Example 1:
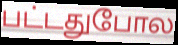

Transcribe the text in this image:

பட்டதுபோல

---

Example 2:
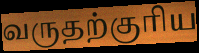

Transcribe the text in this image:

வருதற்குரிய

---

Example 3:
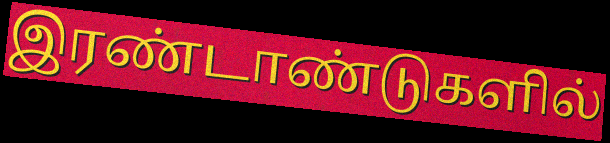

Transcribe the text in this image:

இரண்டாண்டுகளில்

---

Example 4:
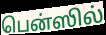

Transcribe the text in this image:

பென்ஸில்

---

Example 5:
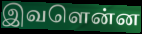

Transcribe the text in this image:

இவளென்ன